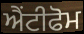
ਐਂਟੀਫੋਮ